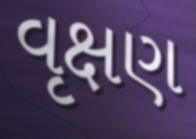
વૃક્ષણ